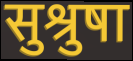
सुश्रुषा